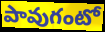
పావుగంటో